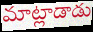
మాట్లాడాడు